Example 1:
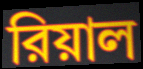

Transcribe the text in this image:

রিয়াল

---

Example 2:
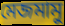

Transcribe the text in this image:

মেজমামু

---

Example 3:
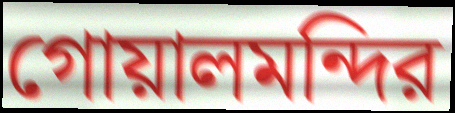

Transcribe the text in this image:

গোয়ালমন্দির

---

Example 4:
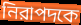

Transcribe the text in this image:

নিরাপদকে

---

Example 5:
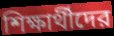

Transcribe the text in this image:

শিক্ষার্থীদের